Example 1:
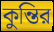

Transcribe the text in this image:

কুন্তির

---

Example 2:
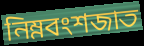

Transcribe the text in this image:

নিম্নবংশজাত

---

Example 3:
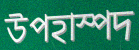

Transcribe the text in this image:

উপহাস্পদ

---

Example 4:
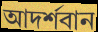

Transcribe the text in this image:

আদর্শবান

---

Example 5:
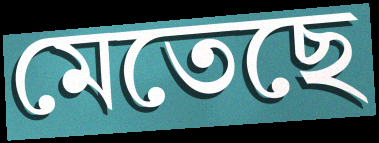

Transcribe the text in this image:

মেতেছে